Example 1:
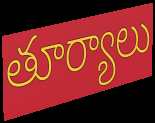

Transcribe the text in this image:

తూర్యాలు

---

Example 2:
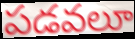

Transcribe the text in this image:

పడవలూ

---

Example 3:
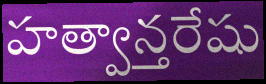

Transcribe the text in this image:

హత్వాన్తరేషు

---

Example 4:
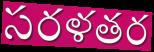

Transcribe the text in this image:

సరళతర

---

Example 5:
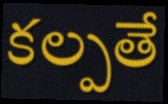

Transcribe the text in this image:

కల్పతే